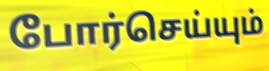
போர்செய்யும்